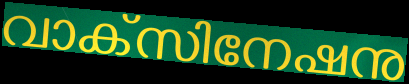
വാക്‌സിനേഷനു